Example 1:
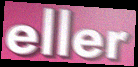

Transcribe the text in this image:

eller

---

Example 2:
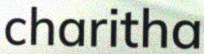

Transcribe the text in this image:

charitha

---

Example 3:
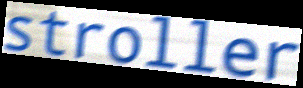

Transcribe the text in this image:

stroller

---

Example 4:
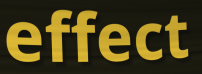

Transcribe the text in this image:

effect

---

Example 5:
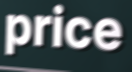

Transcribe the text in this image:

price